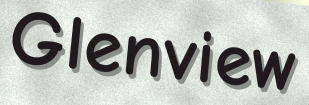
Glenview